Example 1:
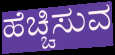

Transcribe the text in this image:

ಹೆಚ್ಚಿಸುವ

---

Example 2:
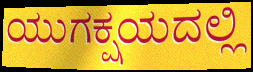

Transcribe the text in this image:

ಯುಗಕ್ಷಯದಲ್ಲಿ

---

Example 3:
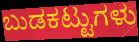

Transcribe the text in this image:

ಬುಡಕಟ್ಟುಗಳು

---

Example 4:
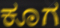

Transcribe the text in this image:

ಕೂಗ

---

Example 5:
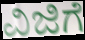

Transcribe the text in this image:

ವಿಜಿಗೆ